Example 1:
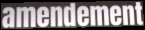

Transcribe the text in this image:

amendement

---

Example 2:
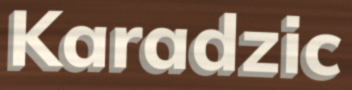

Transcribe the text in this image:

Karadzic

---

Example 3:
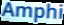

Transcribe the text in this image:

Amphi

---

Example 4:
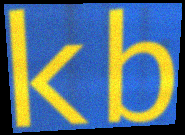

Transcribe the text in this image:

kb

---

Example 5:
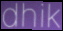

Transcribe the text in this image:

dhik